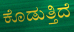
ಕೊಡುತ್ತಿದೆ